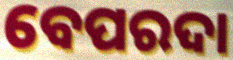
ବେପରଦା